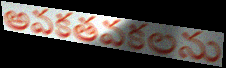
అవకతవకలను